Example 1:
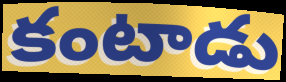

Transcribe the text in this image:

కంటాడు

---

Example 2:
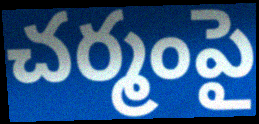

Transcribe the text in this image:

చర్మంపై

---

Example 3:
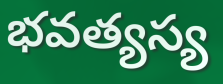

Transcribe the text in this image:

భవత్యస్య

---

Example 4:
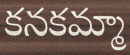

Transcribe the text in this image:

కనకమ్మా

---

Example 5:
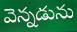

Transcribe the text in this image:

వెన్నడును